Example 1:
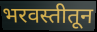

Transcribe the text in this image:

भरवस्तीतून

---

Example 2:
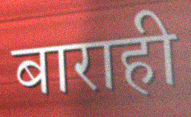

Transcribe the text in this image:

बाराही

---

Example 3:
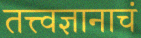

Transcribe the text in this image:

तत्त्वज्ञानाचं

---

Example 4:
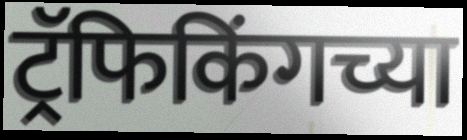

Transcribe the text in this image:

ट्रॅफिकिंगच्या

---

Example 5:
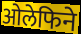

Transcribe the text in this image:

ओलेफिने